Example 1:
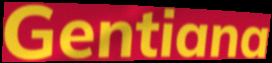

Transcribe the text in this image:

Gentiana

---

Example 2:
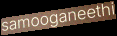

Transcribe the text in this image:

samooganeethi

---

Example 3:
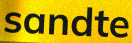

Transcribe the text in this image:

sandte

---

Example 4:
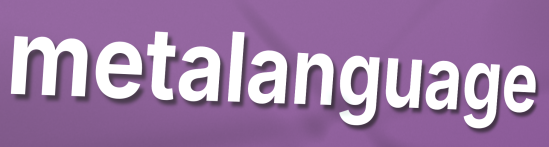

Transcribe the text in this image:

metalanguage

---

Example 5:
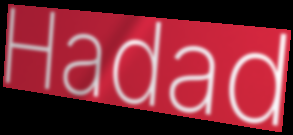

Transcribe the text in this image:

Hadad